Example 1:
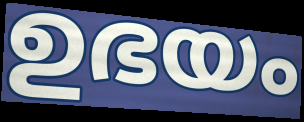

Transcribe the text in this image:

ഉഭയം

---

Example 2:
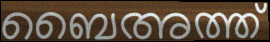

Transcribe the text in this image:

ബൈഅത്ത്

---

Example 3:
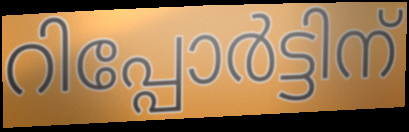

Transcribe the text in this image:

റിപ്പോർട്ടിന്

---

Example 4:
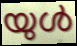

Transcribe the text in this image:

യുൾ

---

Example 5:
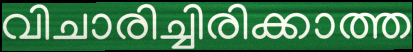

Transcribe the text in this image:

വിചാരിച്ചിരിക്കാത്ത